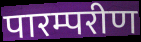
पारम्परीण